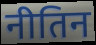
नीतिन